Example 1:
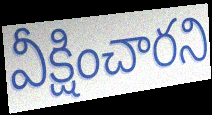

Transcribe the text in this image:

వీక్షించారని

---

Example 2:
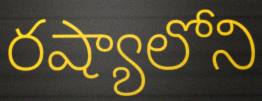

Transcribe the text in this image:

రష్యాలోని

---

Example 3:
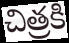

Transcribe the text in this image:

చిత్రకి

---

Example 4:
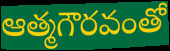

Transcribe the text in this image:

ఆత్మగౌరవంతో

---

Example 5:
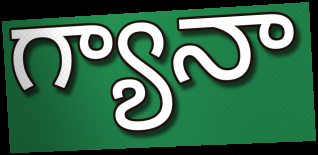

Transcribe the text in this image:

గ్యానా